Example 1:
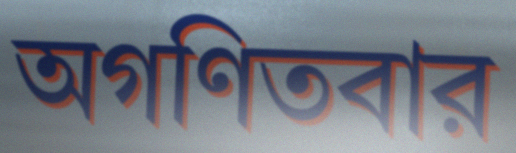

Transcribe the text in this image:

অগণিতবার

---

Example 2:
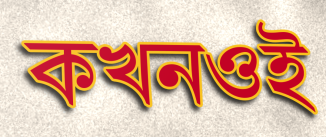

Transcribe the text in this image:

কখনওই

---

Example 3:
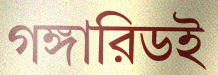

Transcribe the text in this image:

গঙ্গারিডই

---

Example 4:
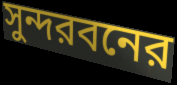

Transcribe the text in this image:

সুন্দরবনের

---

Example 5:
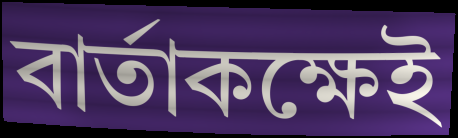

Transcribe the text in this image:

বার্তাকক্ষেই